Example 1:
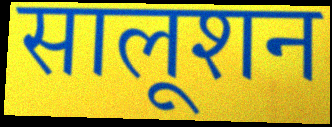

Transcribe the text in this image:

सालूशन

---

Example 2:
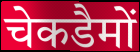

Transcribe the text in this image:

चेकडैमों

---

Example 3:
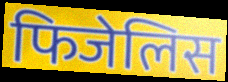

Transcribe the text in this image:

फिजेलिस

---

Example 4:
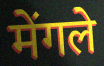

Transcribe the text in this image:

मेंगले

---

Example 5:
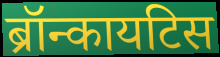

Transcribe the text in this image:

ब्रॉन्कायटिस